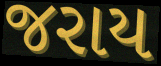
જરાય